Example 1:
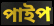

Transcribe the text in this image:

পাইপ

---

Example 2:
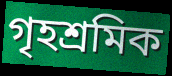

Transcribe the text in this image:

গৃহশ্রমিক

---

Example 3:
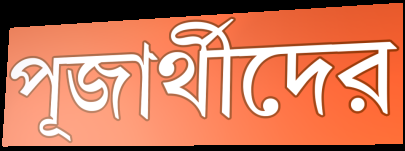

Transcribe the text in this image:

পূজার্থীদের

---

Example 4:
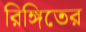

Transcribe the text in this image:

রিঙ্গিতের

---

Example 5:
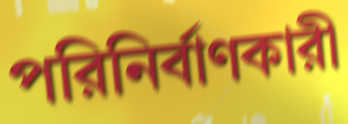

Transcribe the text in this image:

পরিনির্বাণকারী